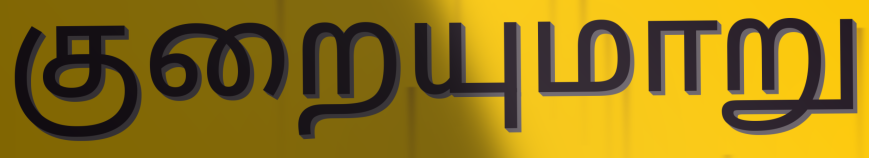
குறையுமாறு